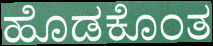
ಹೊಡಕೊಂತ